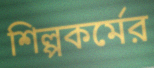
শিল্পকর্মের